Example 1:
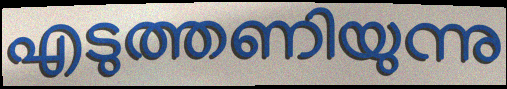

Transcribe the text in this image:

എടുത്തണിയുന്നു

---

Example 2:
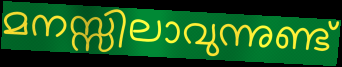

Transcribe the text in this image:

മനസ്സിലാവുന്നുണ്ട്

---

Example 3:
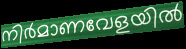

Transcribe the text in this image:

നിർമാണവേളയിൽ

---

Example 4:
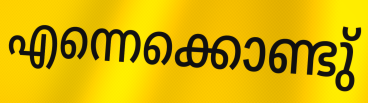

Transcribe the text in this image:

എന്നെക്കൊണ്ടു്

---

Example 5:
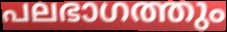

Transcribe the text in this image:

പലഭാഗത്തും